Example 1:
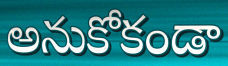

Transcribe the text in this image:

అనుకోకండా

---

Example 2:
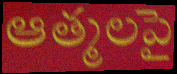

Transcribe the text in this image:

ఆత్మలపై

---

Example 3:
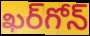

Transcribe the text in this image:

ఖర్‌గోన్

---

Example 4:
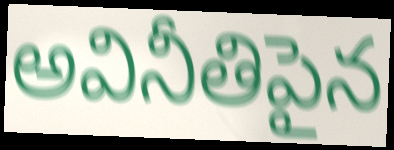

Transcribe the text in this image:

అవినీతిపైన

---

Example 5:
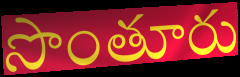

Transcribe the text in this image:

సొంతూరు